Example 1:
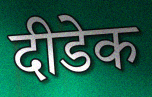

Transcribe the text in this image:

दीडेक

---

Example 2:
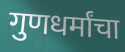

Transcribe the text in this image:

गुणधर्मांचा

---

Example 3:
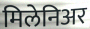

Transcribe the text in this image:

मिलेनिअर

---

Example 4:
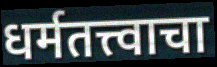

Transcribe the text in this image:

धर्मतत्त्वाचा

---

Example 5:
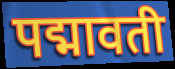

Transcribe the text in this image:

पद्मावती